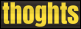
thoghts